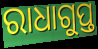
ରାଧାଗୁପ୍ତ